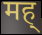
मह्